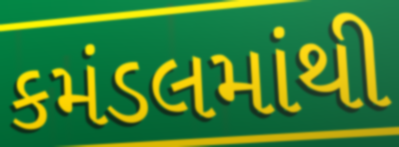
કમંડલમાંથી